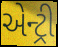
એન્ટ્રી